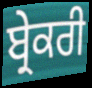
ਬ੍ਰੇਕਰੀ